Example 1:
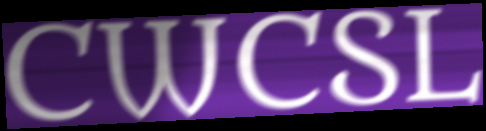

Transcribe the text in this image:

CWCSL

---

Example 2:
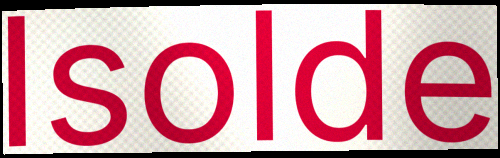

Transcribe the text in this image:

Isolde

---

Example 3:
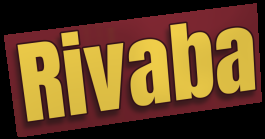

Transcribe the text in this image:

Rivaba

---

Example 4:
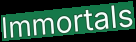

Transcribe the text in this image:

Immortals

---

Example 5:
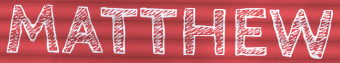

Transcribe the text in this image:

MATTHEW